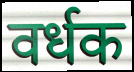
वर्धक